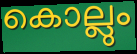
കൊല്ലും